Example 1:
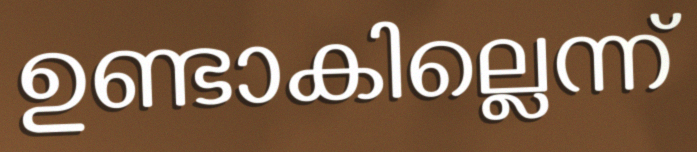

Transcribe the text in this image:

ഉണ്ടാകില്ലെന്ന്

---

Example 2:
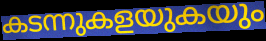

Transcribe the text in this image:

കടന്നുകളയുകയും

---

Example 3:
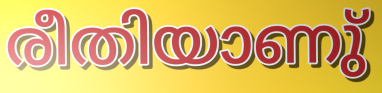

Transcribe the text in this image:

രീതിയാണു്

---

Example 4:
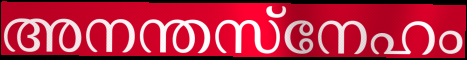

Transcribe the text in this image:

അനന്തസ്നേഹം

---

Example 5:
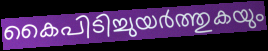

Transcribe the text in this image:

കൈപിടിച്ചുയർത്തുകയും